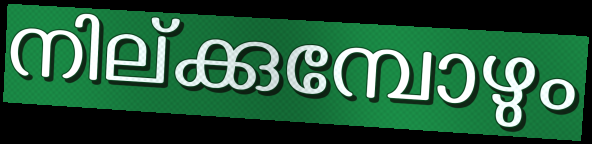
നില്ക്കുമ്പോഴും